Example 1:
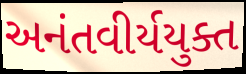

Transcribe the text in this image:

અનંતવીર્યયુક્ત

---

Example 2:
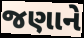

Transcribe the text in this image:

જણાને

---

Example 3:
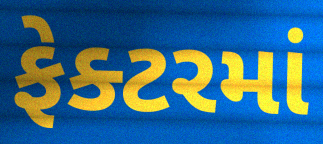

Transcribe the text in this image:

ફેક્ટરમાં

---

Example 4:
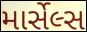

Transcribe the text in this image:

માર્સેલ્સ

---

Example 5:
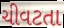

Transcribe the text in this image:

ચીવટતા